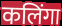
कलिंगा